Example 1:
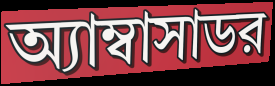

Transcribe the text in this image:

অ্যাম্বাসাডর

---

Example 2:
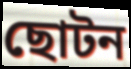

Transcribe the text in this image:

ছোটন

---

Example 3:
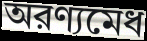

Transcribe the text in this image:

অরণ্যমেধ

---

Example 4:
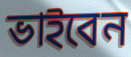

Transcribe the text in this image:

ভাইবেন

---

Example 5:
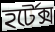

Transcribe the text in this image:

হর্টেক্স